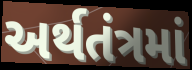
અર્થતંત્રમાં